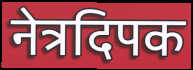
नेत्रदिपक